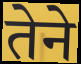
तेने